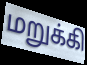
மறுக்கி